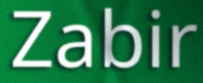
Zabir